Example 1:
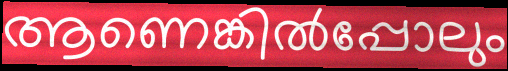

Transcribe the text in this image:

ആണെങ്കിൽപ്പോലും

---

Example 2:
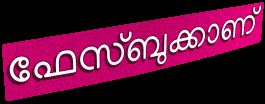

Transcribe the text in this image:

ഫേസ്ബുക്കാണ്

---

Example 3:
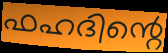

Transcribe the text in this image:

ഫഹദിന്റെ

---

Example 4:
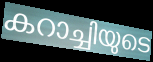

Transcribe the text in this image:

കറാച്ചിയുടെ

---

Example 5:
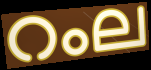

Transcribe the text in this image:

റംല